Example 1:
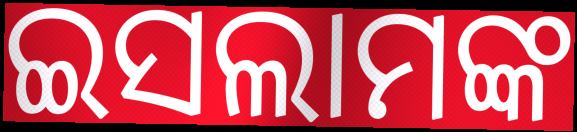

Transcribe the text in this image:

ଇସଲାମଙ୍କ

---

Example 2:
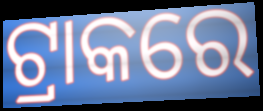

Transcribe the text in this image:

ଟ୍ରାକରେ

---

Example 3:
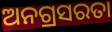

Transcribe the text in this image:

ଅନଗ୍ରସରତା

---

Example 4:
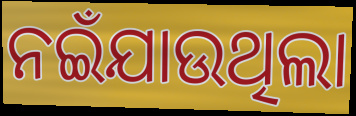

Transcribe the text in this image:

ନଇଁଯାଉଥିଲା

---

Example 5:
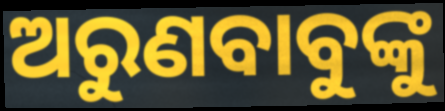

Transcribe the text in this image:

ଅରୁଣବାବୁଙ୍କୁ